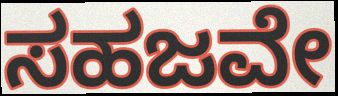
ಸಹಜವೇ